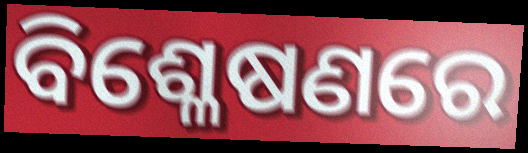
ବିଶ୍ଳେଷଣରେ